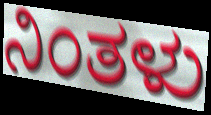
ನಿಂತಳು